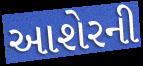
આશેરની